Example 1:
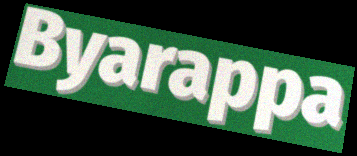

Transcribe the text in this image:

Byarappa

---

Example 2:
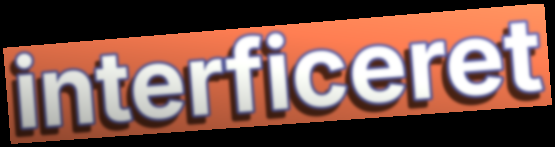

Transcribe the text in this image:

interficeret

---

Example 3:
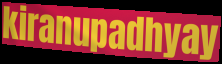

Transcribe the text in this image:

kiranupadhyay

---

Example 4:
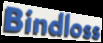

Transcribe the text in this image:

Bindloss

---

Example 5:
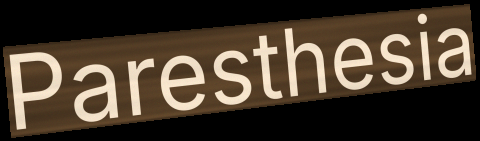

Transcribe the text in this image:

Paresthesia